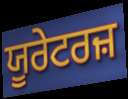
ਯੂਰੇਟਰਜ਼